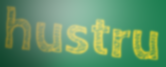
hustru